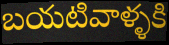
బయటివాళ్ళకి